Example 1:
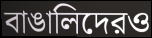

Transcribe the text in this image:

বাঙালিদেরও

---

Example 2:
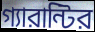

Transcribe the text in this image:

গ্যারান্টির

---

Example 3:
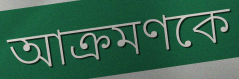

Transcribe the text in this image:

আক্রমণকে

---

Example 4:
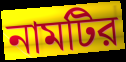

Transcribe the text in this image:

নামটির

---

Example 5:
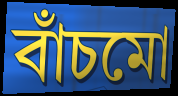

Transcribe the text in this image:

বাঁচমো